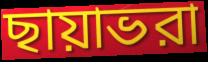
ছায়াভরা